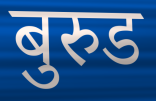
बुरुड